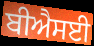
ਬੀਐਸਈ